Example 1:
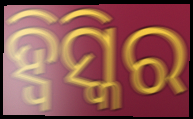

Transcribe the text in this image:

ହ୍ୱିସ୍କିର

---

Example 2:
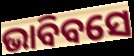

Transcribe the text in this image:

ଭାବିବସେ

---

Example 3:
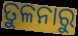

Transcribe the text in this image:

ତୁଳନାରୁ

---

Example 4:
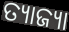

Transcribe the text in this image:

ତ୍ଯାଜ୍ୟା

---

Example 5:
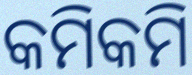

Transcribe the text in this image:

କମିକମି